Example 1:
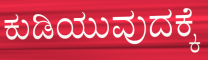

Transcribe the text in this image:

ಕುಡಿಯುವುದಕ್ಕೆ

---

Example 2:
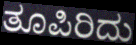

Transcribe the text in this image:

ತೂಪಿರಿದು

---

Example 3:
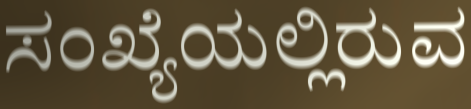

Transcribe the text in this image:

ಸಂಖ್ಯೆಯಲ್ಲಿರುವ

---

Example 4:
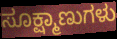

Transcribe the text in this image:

ಸೂಕ್ಷ್ಮಾಣುಗಳು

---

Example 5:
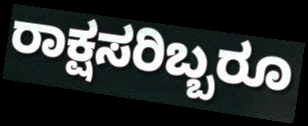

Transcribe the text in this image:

ರಾಕ್ಷಸರಿಬ್ಬರೂ